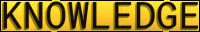
KNOWLEDGE